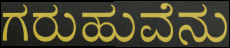
ಗರುಹುವೆನು